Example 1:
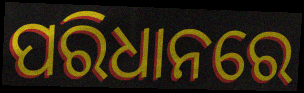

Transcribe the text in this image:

ପରିଧାନରେ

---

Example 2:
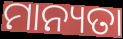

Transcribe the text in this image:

ମାନ୍ୟତା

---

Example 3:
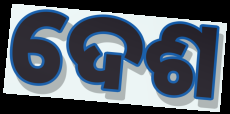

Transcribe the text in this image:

ଦେଶ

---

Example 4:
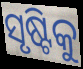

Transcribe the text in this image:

ସୃଷ୍ଟିକୁ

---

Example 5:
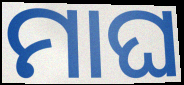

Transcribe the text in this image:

ମାଘ